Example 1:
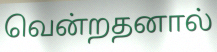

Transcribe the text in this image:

வென்றதனால்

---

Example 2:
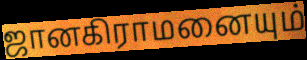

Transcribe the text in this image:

ஜானகிராமனையும்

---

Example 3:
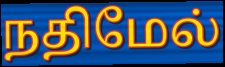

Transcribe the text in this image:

நதிமேல்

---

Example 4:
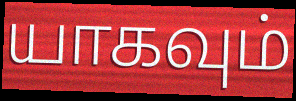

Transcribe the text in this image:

யாகவும்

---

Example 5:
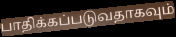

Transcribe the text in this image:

பாதிக்கப்படுவதாகவும்